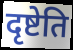
दृष्टेति